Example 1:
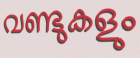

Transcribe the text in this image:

വണ്ടുകളും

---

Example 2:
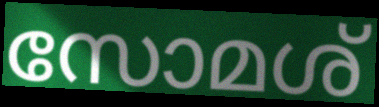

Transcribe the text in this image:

സോമശ്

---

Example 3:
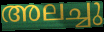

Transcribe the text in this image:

അലച്ചു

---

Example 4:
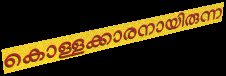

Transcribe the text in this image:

കൊള്ളക്കാരനായിരുന്ന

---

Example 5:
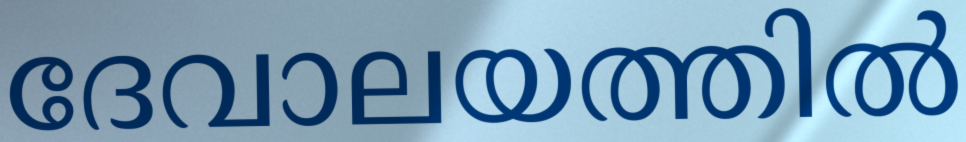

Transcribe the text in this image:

ദേവാലയത്തിൽ